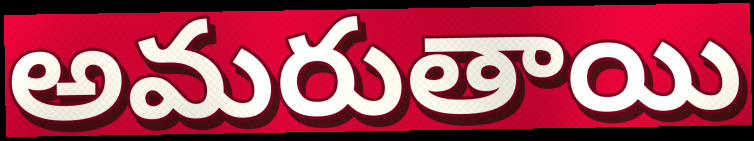
అమరుతాయి